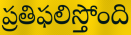
ప్రతిఫలిస్తోంది